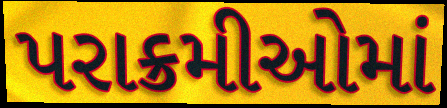
પરાક્રમીઓમાં